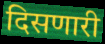
दिसणारी